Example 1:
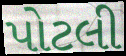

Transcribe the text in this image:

પોટલી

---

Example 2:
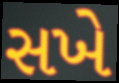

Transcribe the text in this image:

સખે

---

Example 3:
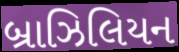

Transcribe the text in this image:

બ્રાઝિલિયન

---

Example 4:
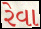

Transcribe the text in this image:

રેવા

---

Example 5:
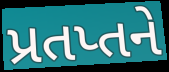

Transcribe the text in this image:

પ્રતપ્તને